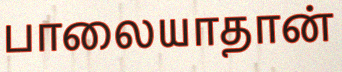
பாலையாதான்